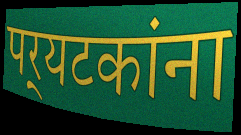
पर्यटकांना